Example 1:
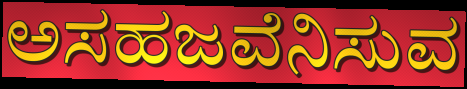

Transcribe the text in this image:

ಅಸಹಜವೆನಿಸುವ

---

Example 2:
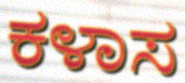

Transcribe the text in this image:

ಕಳಾಸ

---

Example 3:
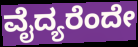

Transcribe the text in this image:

ವೈದ್ಯರೆಂದೇ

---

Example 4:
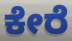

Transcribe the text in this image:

ಕೇರೆ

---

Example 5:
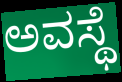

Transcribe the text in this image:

ಅವಸ್ಥೆ